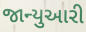
જાન્યુઆરી